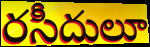
రసీదులూ